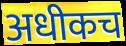
अधीकच